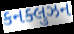
કનક્લુઝન